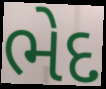
ભેદ